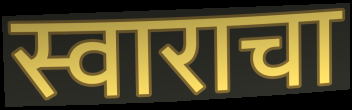
स्वाराचा